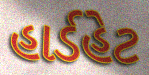
હાર્ડહેટ